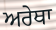
ਅਰੇਥਾ